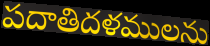
పదాతిదళములను